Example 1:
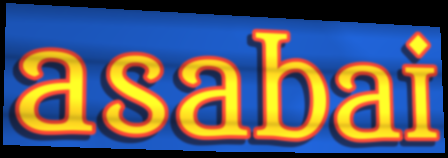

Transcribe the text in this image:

asabai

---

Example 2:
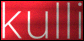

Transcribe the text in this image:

kulli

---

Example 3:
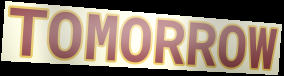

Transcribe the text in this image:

TOMORROW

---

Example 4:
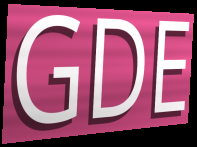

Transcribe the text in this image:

GDE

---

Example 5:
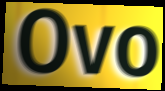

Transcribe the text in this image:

Ovo